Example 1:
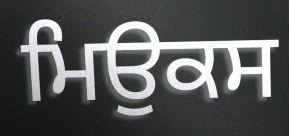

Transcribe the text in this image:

ਮਿਉਕਸ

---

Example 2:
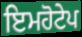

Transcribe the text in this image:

ਇਮਹੋਟੇਪ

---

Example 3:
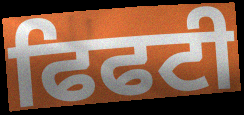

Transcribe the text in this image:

ਫਿਫਟੀ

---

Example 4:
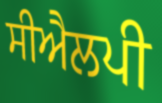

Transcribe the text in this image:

ਸੀਐਲਪੀ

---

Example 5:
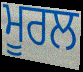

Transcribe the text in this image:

ਮੂਰਲ